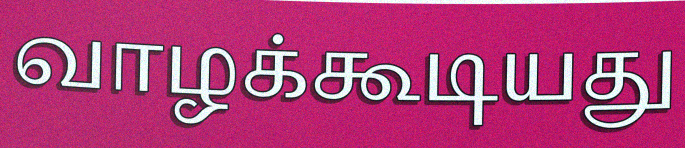
வாழக்கூடியது